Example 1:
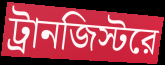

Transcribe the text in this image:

ট্রানজিস্টরে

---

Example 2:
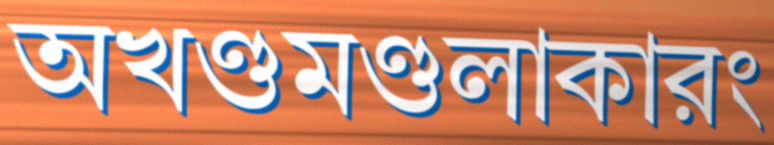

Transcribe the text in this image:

অখণ্ডমণ্ডলাকারং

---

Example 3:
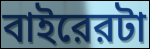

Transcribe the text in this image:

বাইরেরটা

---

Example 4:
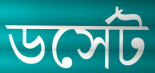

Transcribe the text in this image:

ডর্সেট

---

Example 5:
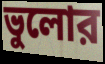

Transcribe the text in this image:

ভুলোর